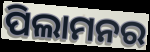
ପିଲାମନର